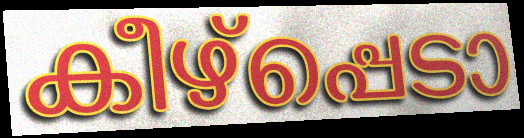
കീഴ്പ്പെടാ